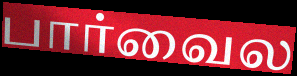
பார்வைல